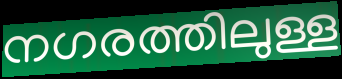
നഗരത്തിലുള്ള